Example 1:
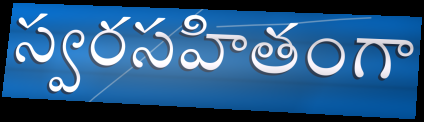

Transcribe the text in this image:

స్వరసహితంగా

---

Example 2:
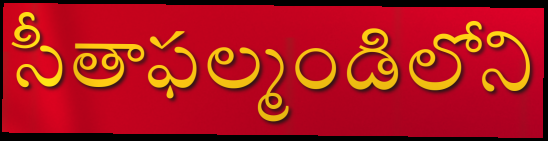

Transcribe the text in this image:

సీతాఫల్మండిలోని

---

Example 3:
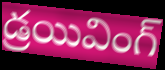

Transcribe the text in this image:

డ్రయివింగ్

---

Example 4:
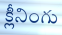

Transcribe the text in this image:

క్లీనింగు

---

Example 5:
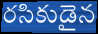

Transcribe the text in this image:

రసికుడైన